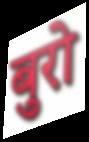
बुरो